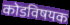
कोडविषयक